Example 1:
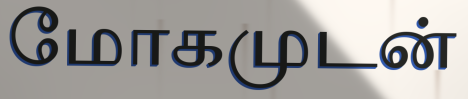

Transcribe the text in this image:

மோகமுடன்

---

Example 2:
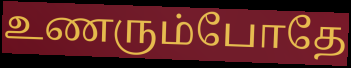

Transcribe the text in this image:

உணரும்போதே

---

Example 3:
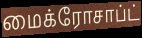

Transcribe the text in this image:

மைக்ரோசாப்ட்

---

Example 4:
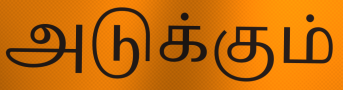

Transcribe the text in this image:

அடுக்கும்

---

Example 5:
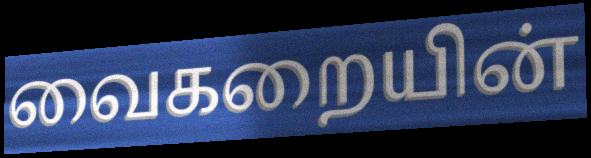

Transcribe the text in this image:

வைகறையின்